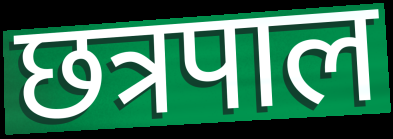
छत्रपाल